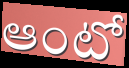
ఆంటో